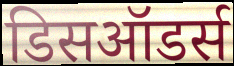
डिसऑडर्स